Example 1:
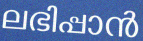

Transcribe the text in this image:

ലഭിപ്പാൻ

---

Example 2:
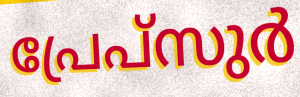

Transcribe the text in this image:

പ്രേപ്സുർ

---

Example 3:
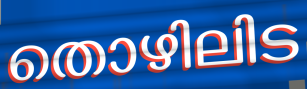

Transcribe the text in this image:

തൊഴിലിട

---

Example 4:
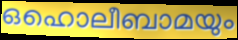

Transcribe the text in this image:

ഒഹൊലീബാമയും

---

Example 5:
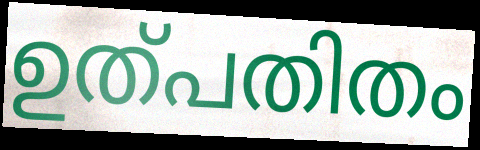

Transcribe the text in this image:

ഉത്പതിതം